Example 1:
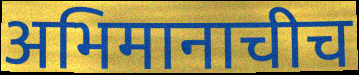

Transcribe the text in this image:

अभिमानाचीच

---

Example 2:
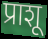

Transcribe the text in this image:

प्राशू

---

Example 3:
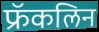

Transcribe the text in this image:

फ्रॅकलिन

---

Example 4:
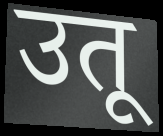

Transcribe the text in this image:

उतू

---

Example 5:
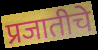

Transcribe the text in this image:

प्रजातीचे